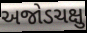
અજોડચક્ષુ